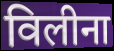
विलीना